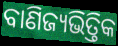
ବାଣିଜ୍ୟଭିତ୍ତିକ